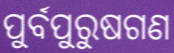
ପୁର୍ବପୁରୁଷଗଣ